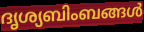
ദൃശ്യബിംബങ്ങൾ